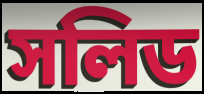
সলিড